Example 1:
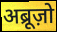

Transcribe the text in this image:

अब्रूज़ो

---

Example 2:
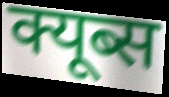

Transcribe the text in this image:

क्यूब्स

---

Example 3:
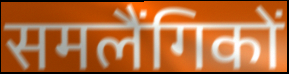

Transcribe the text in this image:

समलैंगिकों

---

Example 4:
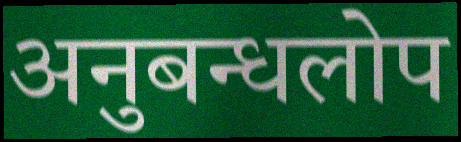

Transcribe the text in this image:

अनुबन्धलोप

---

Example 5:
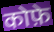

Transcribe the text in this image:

कोफ़े